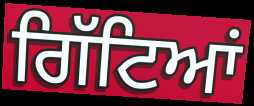
ਗਿੱਟਿਆਂ